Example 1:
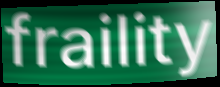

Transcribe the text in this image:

fraility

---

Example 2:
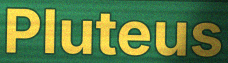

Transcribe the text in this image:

Pluteus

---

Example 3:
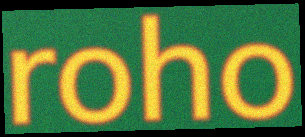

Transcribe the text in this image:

roho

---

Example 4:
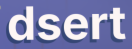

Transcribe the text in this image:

dsert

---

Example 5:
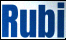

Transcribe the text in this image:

Rubi